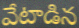
వేటాడిన